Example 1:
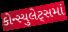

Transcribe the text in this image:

કોન્સ્યુલેટ્સમાં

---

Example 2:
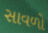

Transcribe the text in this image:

સાવળો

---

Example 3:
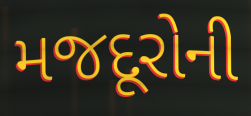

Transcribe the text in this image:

મજદૂરોની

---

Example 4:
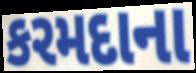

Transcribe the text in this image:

કરમદાના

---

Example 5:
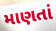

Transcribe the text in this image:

માણતાં